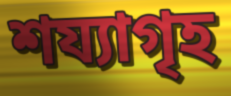
শয্যাগৃহ